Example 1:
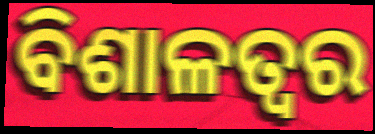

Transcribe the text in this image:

ବିଶାଳତ୍ୱର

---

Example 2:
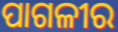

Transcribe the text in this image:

ପାଗଳୀର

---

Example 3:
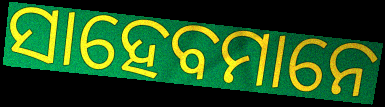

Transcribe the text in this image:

ସାହେବମାନେ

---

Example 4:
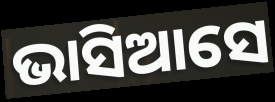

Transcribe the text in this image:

ଭାସିଆସେ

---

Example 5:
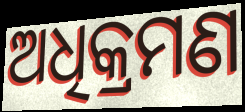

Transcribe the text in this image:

ଅଧିକ୍ରମଣ